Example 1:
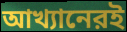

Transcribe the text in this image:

আখ্যানেরই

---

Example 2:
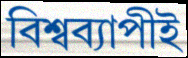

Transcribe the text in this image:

বিশ্বব্যাপীই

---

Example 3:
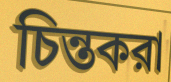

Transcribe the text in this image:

চিন্তকরা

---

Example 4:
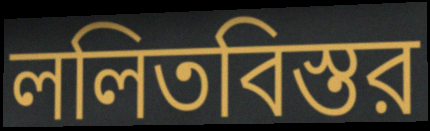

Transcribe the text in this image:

ললিতবিস্তর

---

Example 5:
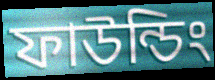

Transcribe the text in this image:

ফাউন্ডিং